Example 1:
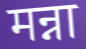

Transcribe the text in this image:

मन्ना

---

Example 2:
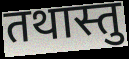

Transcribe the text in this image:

तथास्तु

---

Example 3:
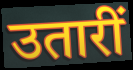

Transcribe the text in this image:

उतारीं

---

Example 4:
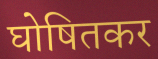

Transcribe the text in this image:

घोषितकर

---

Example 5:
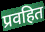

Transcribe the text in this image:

प्रवहित